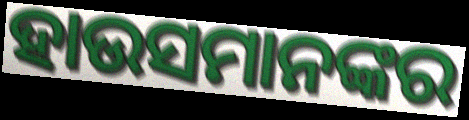
ହାଉସମାନଙ୍କର